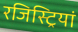
रजिस्ट्रियां